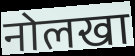
नोलखा